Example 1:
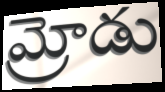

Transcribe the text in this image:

మ్రోడు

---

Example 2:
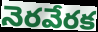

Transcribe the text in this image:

నెరవేరక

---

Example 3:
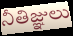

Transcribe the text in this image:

నీతిజ్ఞులు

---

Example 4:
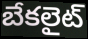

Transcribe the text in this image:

బేకలైట్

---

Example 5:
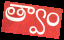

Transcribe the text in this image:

త్వాం